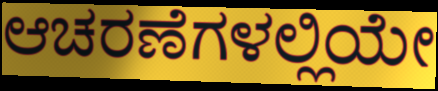
ಆಚರಣೆಗಳಲ್ಲಿಯೇ